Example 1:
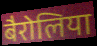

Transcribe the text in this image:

बैरोलिया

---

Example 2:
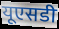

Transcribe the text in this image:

यूएसडी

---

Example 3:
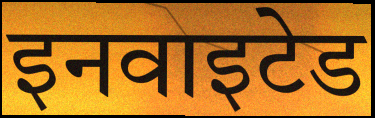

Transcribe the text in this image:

इनवाइटेड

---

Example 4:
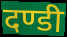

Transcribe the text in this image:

दण्डी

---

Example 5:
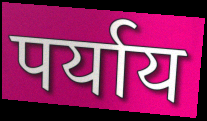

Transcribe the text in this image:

पर्याय